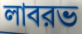
লাবরভ